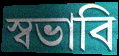
স্বভাবি